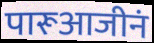
पारूआजीनं